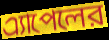
এ্যাপেলের